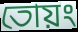
তোয়ং